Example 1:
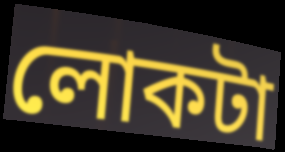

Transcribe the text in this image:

লোকটা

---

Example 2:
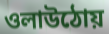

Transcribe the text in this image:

ওলাউঠোয়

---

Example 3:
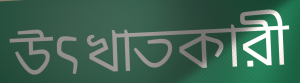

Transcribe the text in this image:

উৎখাতকারী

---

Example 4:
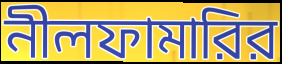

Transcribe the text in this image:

নীলফামারির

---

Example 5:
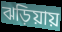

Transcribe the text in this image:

ঝড়িয়ায়